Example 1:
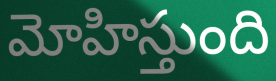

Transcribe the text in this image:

మోహిస్తుంది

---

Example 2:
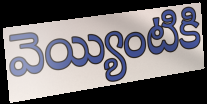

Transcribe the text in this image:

వెయ్యింటికి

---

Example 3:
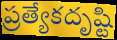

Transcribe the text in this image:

ప్రత్యేకదృష్టి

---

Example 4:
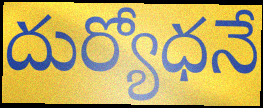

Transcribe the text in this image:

దుర్యోధనే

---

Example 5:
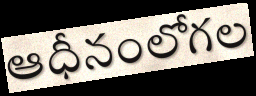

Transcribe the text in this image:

ఆధీనంలోగల